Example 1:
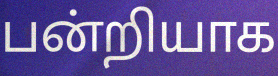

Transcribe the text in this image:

பன்றியாக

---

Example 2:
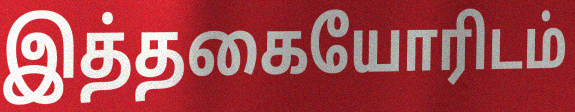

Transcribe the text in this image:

இத்தகையோரிடம்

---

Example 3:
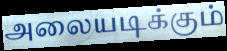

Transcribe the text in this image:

அலையடிக்கும்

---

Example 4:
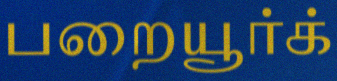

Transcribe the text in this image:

பறையூர்க்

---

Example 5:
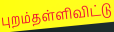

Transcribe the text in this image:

புறம்தள்ளிவிட்டு